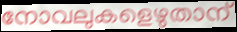
നോവലുകളെഴുതാന്